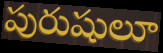
పురుషులూ